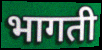
भागती